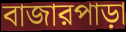
বাজারপাড়া